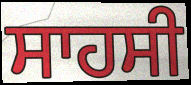
ਸਾਹਸੀ